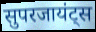
सुपरजायंट्स